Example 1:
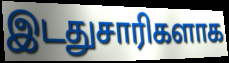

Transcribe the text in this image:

இடதுசாரிகளாக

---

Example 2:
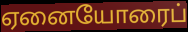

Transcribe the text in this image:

ஏனையோரைப்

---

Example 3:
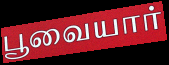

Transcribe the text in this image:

பூவையார்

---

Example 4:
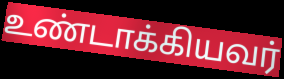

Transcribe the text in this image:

உண்டாக்கியவர்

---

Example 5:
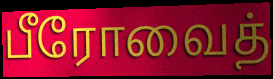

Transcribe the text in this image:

பீரோவைத்